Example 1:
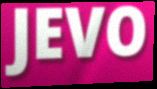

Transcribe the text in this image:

JEVO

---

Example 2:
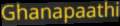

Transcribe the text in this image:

Ghanapaathi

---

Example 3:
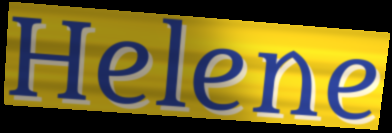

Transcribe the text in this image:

Helene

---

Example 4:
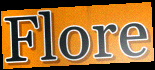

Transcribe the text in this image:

Flore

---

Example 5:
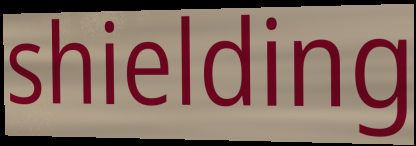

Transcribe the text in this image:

shielding